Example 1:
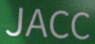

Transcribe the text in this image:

JACC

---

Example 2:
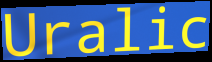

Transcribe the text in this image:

Uralic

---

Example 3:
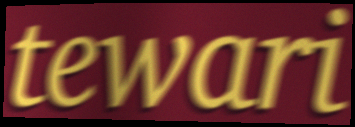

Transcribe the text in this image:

tewari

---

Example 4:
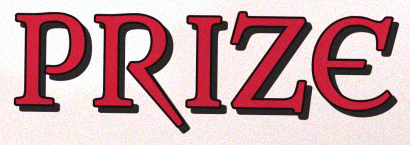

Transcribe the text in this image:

PRIZE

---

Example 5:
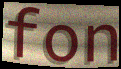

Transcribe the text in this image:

fon